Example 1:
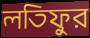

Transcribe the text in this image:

লতিফুর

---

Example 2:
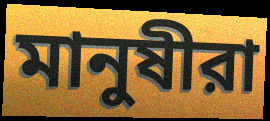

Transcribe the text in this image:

মানুষীরা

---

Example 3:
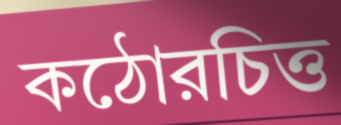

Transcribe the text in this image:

কঠোরচিত্ত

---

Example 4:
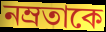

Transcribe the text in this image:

নম্রতাকে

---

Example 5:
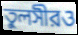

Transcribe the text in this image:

তুলসীরও